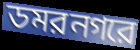
ডমরনগরে